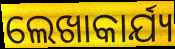
ଲେଖାକାର୍ଯ୍ୟ